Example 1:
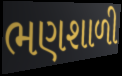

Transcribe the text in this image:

ભણશાળી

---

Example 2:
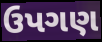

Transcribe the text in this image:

ઉપગણ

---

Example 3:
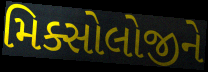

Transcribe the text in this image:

મિક્સોલોજીને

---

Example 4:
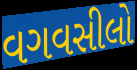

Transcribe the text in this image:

વગવસીલો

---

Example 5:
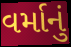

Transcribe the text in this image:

વર્માનું